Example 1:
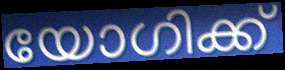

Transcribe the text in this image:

യോഗിക്ക്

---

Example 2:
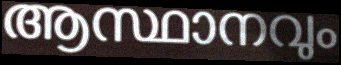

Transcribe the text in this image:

ആസ്ഥാനവും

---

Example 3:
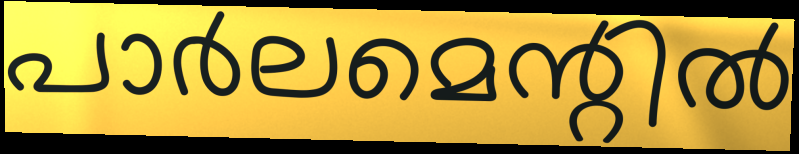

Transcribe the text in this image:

പാർലമെന്റിൽ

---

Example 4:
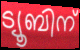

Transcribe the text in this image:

ട്യൂബിന്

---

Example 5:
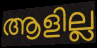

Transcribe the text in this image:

ആളില്ല